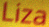
Liza